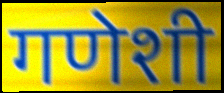
गणेशी